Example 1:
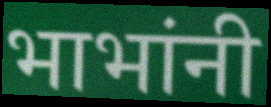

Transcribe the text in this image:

भाभांनी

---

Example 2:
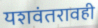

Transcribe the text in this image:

यशवंतरावही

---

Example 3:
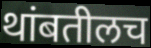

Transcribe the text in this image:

थांबतीलच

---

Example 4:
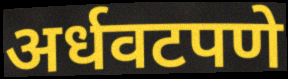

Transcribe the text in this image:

अर्धवटपणे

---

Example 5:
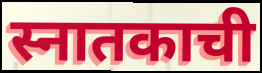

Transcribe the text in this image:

स्नातकाची